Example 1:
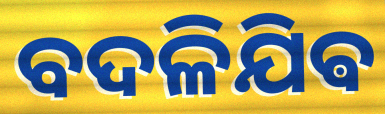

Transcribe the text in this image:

ବଦଳିଯିଵ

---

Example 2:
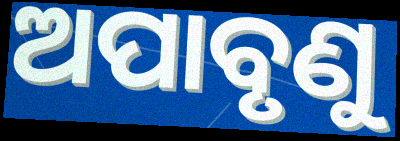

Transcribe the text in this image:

ଅପାବୃଣୁ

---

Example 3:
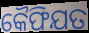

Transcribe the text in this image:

କୈଫିଯତ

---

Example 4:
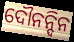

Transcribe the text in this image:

ଦୌନନ୍ଦିନ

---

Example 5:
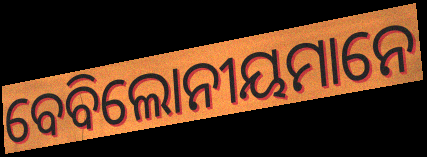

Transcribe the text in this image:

ବେବିଲୋନୀୟମାନେ